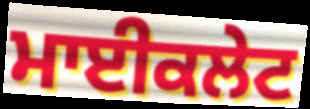
ਮਾਈਕਲੇਟ